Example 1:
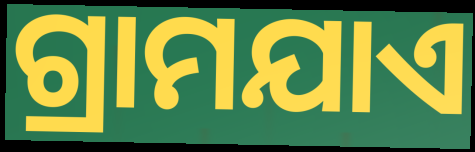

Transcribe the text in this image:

ଗ୍ରାମଯାଏ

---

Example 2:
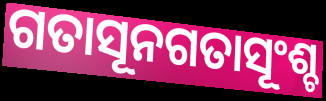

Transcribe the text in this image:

ଗତାସୂନଗତାସୂଂଶ୍ଚ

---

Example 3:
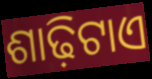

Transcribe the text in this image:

ଶାଢ଼ିଟାଏ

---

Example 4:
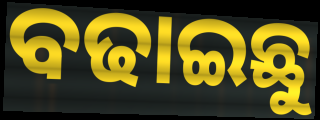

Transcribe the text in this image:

ବଢାଇଛୁ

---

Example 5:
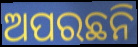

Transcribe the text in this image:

ଅପରଛନି